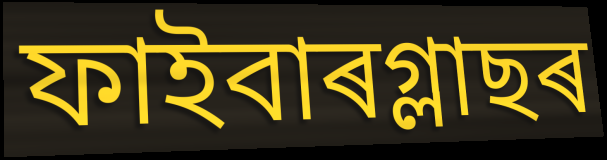
ফাইবাৰগ্লাছৰ